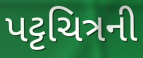
પટ્ટચિત્રની